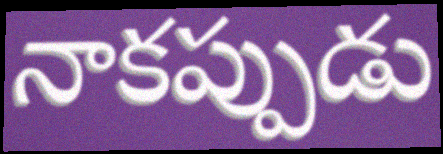
నాకప్పుడు